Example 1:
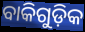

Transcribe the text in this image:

ବାକିଗୁଡ଼ିକ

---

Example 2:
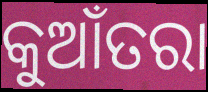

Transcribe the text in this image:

କୁଆଁତରା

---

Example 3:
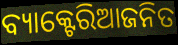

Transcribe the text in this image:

ବ୍ୟାକ୍ଟେରିଆଜନିତ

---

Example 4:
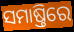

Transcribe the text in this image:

ସମାଷ୍ତିରେ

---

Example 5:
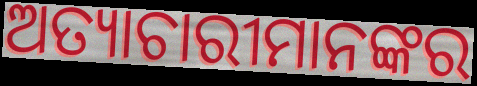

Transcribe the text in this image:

ଅତ୍ୟାଚାରୀମାନଙ୍କର